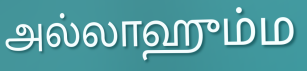
அல்லாஹும்ம